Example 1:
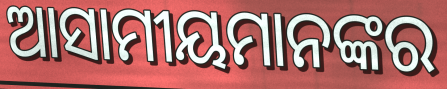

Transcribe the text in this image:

ଆସାମୀୟମାନଙ୍କର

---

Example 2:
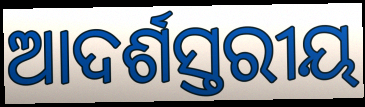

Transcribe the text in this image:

ଆଦର୍ଶସ୍ତରୀୟ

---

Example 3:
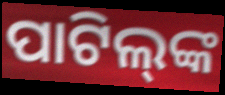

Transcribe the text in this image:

ପାଟିଲ୍‌ଙ୍କ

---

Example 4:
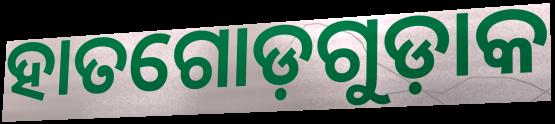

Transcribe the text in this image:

ହାତଗୋଡ଼ଗୁଡ଼ାକ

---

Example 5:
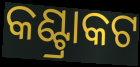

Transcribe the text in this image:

କଣ୍ଟ୍ରାକଟ